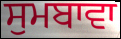
ਸੁਮਬਾਵਾ